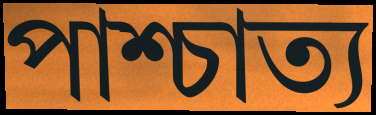
পাশ্চাত্য